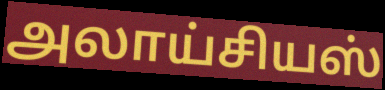
அலாய்சியஸ்